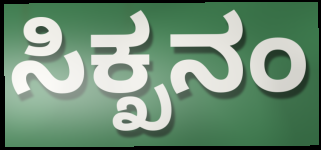
ಸಿಕ್ಖನಂ